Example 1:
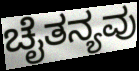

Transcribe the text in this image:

ಚೈತನ್ಯವು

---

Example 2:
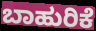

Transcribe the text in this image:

ಬಾಹುರಿಕೆ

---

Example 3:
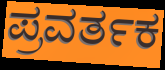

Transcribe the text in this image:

ಪ್ರವರ್ತಕ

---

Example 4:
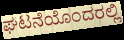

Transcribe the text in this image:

ಘಟನೆಯೊಂದರಲ್ಲಿ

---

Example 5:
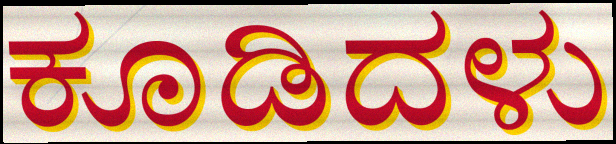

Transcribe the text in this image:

ಕೂಡಿದಳು